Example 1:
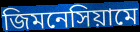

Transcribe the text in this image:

জিমনেসিয়ামে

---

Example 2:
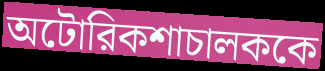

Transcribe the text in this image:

অটোরিকশাচালককে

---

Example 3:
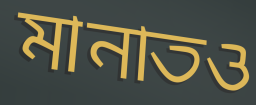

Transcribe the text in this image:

মানাতও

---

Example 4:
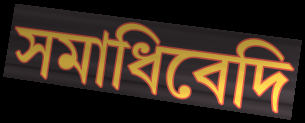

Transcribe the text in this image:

সমাধিবেদি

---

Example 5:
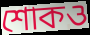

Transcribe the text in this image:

শোকও